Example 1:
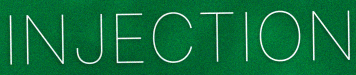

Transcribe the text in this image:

INJECTION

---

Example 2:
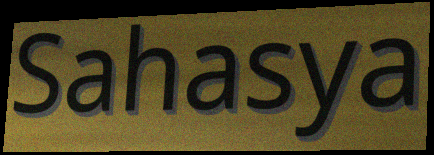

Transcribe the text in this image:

Sahasya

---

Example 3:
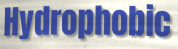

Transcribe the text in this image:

Hydrophobic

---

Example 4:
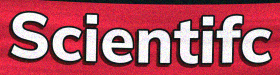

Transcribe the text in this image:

Scientifc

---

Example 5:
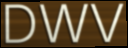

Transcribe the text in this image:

DWV